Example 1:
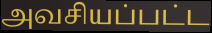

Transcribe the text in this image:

அவசியப்பட்ட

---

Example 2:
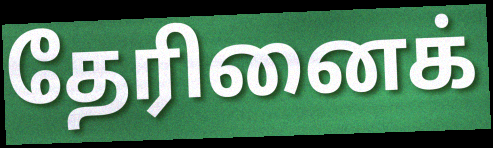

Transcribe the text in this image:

தேரினைக்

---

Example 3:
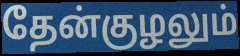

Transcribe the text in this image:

தேன்குழலும்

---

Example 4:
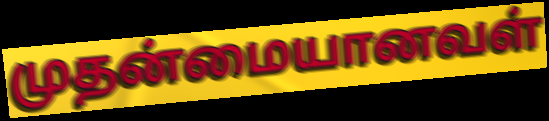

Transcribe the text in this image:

முதன்மையானவள்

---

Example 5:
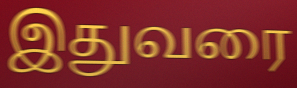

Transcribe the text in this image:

இதுவரை